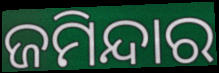
ଜମିନ୍ଦାର